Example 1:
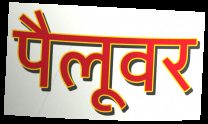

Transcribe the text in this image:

पैलूवर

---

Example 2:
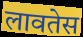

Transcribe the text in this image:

लावतेस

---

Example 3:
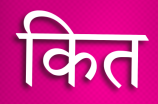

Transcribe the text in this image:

कित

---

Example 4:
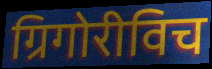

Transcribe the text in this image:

ग्रिगोरीविच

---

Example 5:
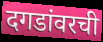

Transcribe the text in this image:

दगडांवरची